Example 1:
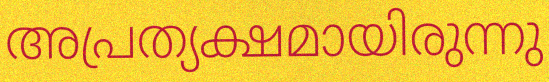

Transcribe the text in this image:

അപ്രത്യക്ഷമായിരുന്നു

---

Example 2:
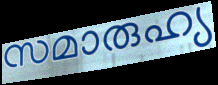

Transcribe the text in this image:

സമാരുഹ്യ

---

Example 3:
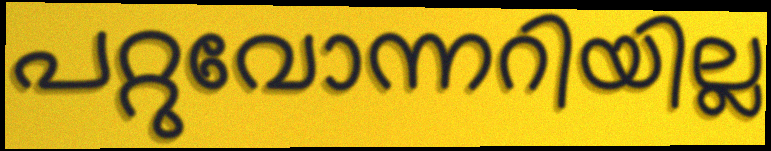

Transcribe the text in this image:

പറ്റുവോന്നറിയില്ല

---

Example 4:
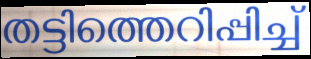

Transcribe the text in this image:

തട്ടിത്തെറിപ്പിച്ച്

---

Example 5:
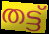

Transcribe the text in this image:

തട്ട്